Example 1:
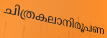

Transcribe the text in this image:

ചിത്രകലാനിരൂപണ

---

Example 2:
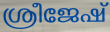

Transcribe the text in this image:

ശ്രീജേഷ്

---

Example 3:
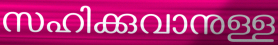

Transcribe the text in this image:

സഹിക്കുവാനുള്ള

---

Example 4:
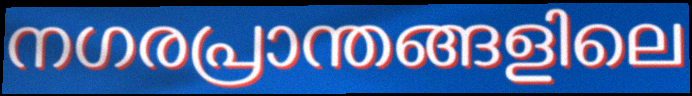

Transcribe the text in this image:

നഗരപ്രാന്തങ്ങളിലെ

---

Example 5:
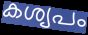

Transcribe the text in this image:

കശ്യപം